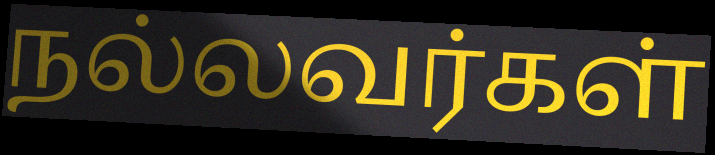
நல்லவர்கள்